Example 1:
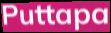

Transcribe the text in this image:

Puttapa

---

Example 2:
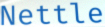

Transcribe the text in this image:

Nettle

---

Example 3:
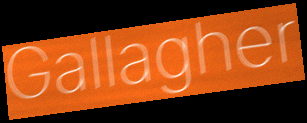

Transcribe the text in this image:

Gallagher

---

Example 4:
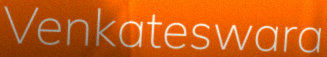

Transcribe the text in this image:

Venkateswara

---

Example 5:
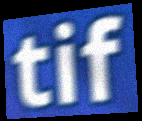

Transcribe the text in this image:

tif